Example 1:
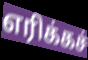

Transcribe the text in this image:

எரிக்கச்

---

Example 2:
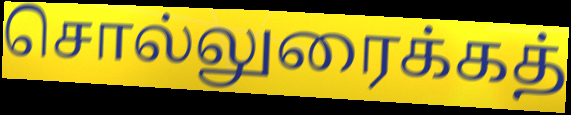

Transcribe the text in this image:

சொல்லுரைக்கத்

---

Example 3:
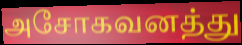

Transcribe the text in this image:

அசோகவனத்து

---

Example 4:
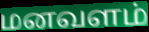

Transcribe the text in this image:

மனவளம்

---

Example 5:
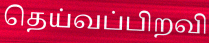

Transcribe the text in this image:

தெய்வப்பிறவி